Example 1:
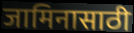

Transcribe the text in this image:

जामिनासाठी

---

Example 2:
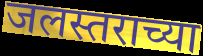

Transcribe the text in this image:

जलस्तराच्या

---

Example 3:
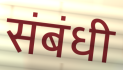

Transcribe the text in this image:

संबंधी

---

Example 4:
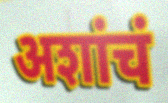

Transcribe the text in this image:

अशांचं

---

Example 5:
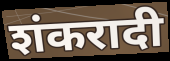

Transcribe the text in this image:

शंकरादी